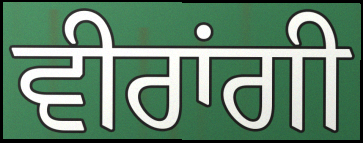
ਵੀਰਾਂਗੀ